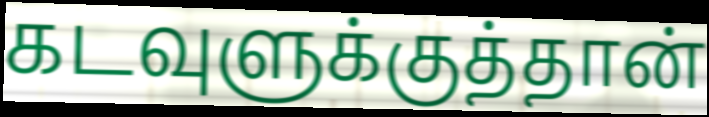
கடவுளுக்குத்தான்